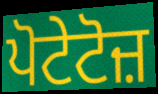
ਪੋਟੇਟੋਜ਼